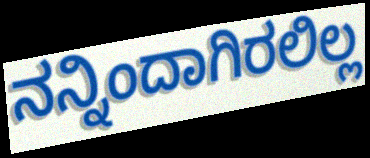
ನನ್ನಿಂದಾಗಿರಲಿಲ್ಲ